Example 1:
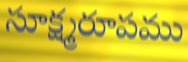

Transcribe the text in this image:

సూక్ష్మరూపము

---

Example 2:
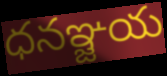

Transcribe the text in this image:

ధనఞ్జయ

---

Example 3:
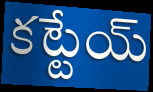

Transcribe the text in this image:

కట్టేయ్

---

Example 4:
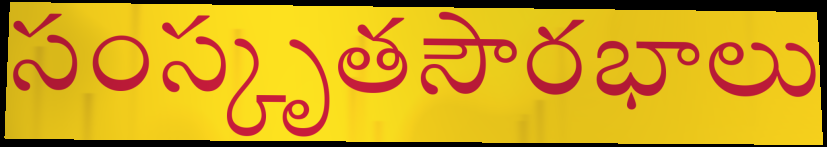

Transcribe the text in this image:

సంస్కృతసౌరభాలు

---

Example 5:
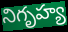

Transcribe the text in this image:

నిగృహ్య